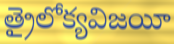
త్రైలోక్యవిజయీ